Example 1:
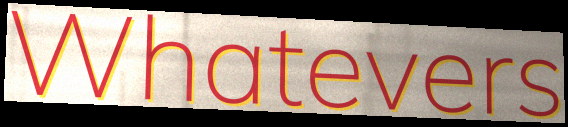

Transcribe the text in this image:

Whatevers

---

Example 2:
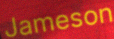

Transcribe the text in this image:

Jameson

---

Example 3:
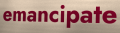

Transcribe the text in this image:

emancipate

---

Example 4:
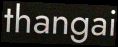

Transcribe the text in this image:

thangai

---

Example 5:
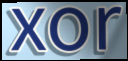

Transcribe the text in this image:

xor